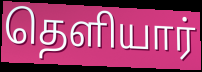
தெளியார்